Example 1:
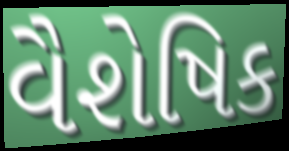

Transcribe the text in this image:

વૈશેષિક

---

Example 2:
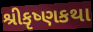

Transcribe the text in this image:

શ્રીકૃષ્ણકથા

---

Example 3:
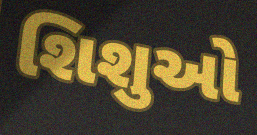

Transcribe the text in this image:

શિશુઓ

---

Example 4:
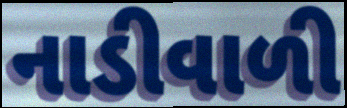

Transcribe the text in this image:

નાડીવાળી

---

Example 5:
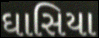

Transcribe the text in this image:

ઘાસિયા